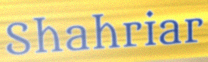
Shahriar